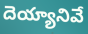
దెయ్యానివే